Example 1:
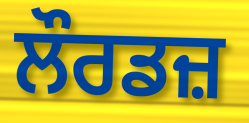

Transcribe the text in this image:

ਲੌਰਡਜ਼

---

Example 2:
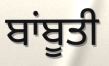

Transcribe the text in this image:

ਬਾਂਬੂਤੀ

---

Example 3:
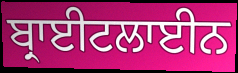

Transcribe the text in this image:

ਬ੍ਰਾਈਟਲਾਈਨ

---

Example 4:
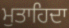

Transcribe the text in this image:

ਮੁਤਾਹਿਦਾ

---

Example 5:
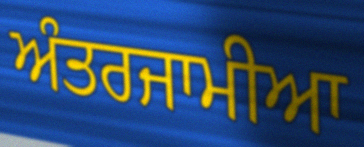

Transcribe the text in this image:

ਅੰਤਰਜਾਮੀਆ